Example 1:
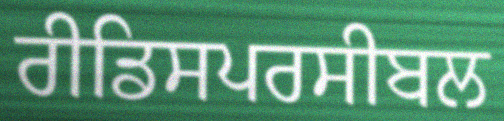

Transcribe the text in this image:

ਰੀਡਿਸਪਰਸੀਬਲ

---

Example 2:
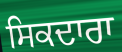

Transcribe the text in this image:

ਸਿਕਦਾਰਾ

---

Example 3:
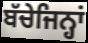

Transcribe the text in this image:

ਬੱਚੇਜਿਨ੍ਹਾਂ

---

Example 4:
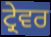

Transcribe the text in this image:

ਟ੍ਰੇਵਰ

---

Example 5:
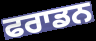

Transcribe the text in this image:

ਫਰਾਡਨ